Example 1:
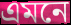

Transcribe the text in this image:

এমনে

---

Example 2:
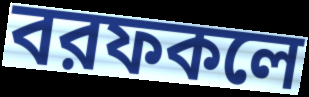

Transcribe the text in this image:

বরফকলে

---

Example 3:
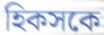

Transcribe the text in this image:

হিকসকে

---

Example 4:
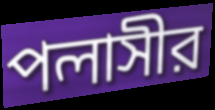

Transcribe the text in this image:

পলাসীর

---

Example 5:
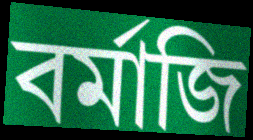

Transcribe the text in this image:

বর্মাজি